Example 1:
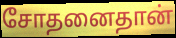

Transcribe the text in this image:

சோதனைதான்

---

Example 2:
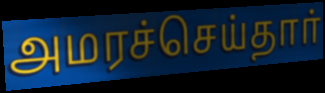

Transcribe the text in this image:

அமரச்செய்தார்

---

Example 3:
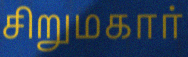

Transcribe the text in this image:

சிறுமகார்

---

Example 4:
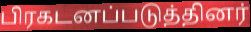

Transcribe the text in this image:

பிரகடனப்படுத்தினர்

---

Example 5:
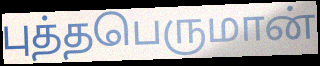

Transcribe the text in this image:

புத்தபெருமான்